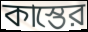
কাস্তের